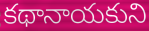
కథానాయకుని